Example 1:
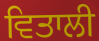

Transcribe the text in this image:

ਵਿਤਾਲੀ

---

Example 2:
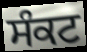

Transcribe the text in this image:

ਸੰਕਟ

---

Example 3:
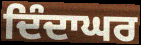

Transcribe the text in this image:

ਦਿੰਦਾਘਰ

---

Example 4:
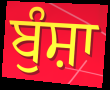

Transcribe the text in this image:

ਬੁੰਸ਼ਾ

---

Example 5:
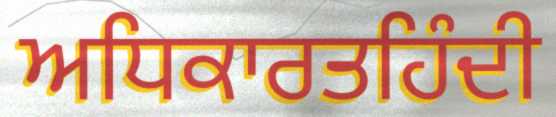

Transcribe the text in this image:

ਅਧਿਕਾਰਤਹਿੰਦੀ